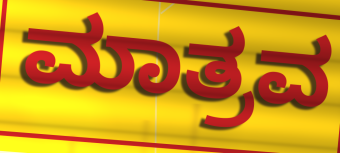
ಮಾತ್ರವ